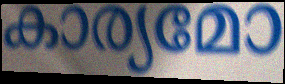
കാര്യമോ